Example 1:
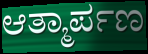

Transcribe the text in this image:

ಆತ್ಮಾರ್ಪಣ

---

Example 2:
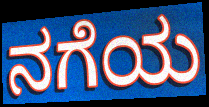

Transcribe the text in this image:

ನಗೆಯ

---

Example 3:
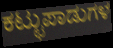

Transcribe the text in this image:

ಕಟ್ಟುಪಾಡುಗಳ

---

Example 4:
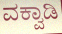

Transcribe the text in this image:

ವಕ್ವಾಡಿ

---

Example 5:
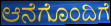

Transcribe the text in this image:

ಆನೆಗೊಂದಿಗೆ